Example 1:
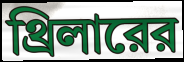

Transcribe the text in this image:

থ্রিলারের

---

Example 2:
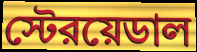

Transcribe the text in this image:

স্টেরয়েডাল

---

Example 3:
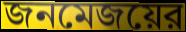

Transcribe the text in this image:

জনমেজয়ের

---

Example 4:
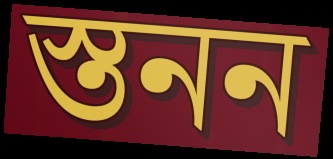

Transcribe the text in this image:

স্তনন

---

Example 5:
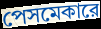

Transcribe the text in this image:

পেসমেকারে